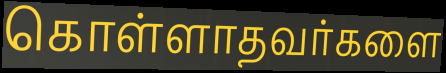
கொள்ளாதவர்களை